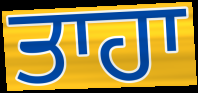
ਤਾਹਾ